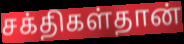
சக்திகள்தான்